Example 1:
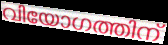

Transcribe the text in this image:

വിയോഗത്തിന്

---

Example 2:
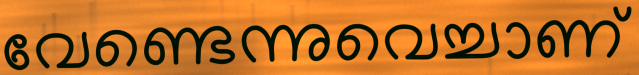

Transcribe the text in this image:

വേണ്ടെന്നുവെച്ചാണ്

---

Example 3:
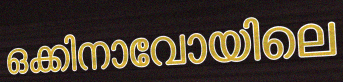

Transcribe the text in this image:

ഒക്കിനാവോയിലെ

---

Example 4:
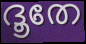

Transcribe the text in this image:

ദൂതേ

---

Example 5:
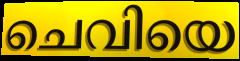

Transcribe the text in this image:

ചെവിയെ